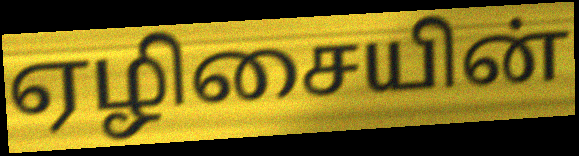
ஏழிசையின்